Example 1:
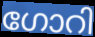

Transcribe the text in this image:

ഗോറി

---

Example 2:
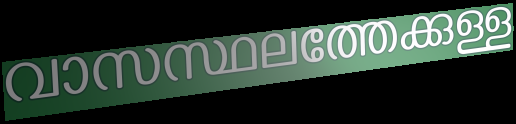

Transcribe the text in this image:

വാസസ്ഥലത്തേക്കുള്ള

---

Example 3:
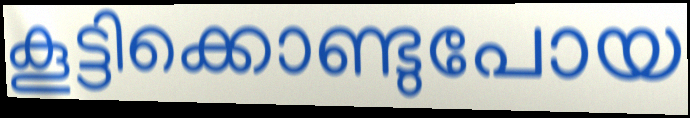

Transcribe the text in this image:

കൂട്ടിക്കൊണ്ടുപോയ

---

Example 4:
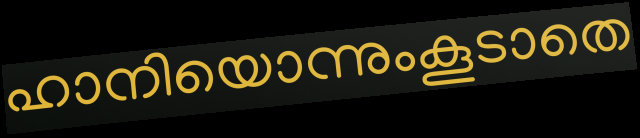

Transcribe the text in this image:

ഹാനിയൊന്നുംകൂടാതെ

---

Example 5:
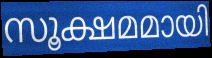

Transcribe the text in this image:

സൂക്ഷമമായി